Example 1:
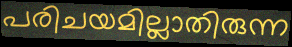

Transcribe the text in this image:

പരിചയമില്ലാതിരുന്ന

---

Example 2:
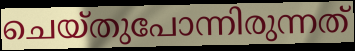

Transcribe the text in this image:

ചെയ്തുപോന്നിരുന്നത്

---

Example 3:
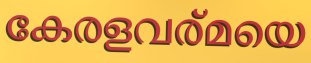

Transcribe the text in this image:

കേരളവര്മയെ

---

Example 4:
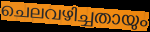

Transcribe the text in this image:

ചെലവഴിച്ചതായും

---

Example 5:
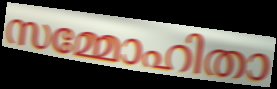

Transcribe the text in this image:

സമ്മോഹിതാ